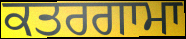
ਕਤਰਗਾਮਾ